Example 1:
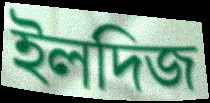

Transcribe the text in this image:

ইলদিজ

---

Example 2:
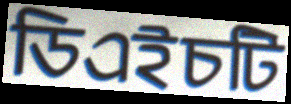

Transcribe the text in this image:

ডিএইচটি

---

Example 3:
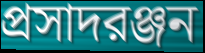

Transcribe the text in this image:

প্রসাদরঞ্জন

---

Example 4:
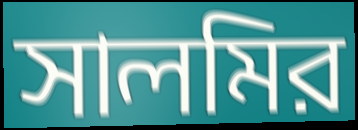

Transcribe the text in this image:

সালমির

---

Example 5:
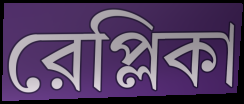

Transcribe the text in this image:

রেপ্লিকা